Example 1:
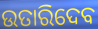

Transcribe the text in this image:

ଉତାରିଦେବ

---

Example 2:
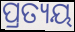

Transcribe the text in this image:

ପ୍ରତ୍ୟୟ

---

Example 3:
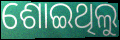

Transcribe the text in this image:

ଶୋଇଥିଲୁ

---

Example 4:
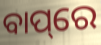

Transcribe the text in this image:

ବାପ୍‌ରେ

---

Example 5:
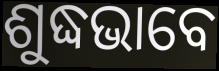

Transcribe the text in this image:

ଶୁଦ୍ଧଭାବେ